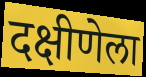
दक्षीणेला